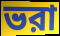
ভরা